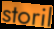
storil